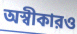
অস্বীকারও